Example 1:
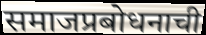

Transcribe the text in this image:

समाजप्रबोधनाची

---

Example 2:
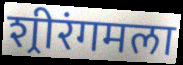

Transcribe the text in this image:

श्रीरंगमला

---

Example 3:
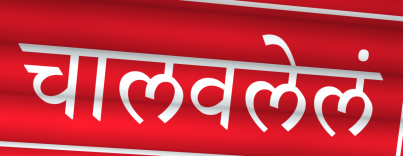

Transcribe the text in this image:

चालवलेलं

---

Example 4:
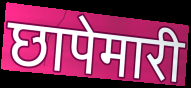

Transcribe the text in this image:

छापेमारी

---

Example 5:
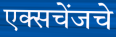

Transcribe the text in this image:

एक्सचेंजचे